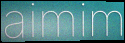
aimim